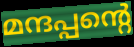
മന്ദപ്പന്റെ